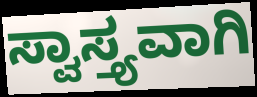
ಸ್ವಾಸ್ತ್ಯವಾಗಿ